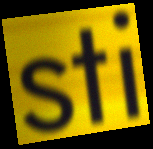
sti